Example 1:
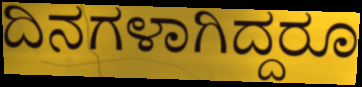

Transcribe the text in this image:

ದಿನಗಳಾಗಿದ್ದರೂ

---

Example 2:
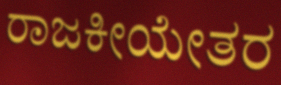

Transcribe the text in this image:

ರಾಜಕೀಯೇತರ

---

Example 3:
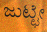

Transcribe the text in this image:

ಜುಟ್ಟೇ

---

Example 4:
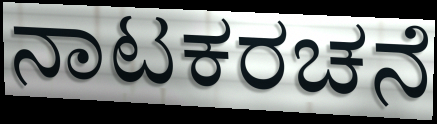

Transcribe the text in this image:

ನಾಟಕರಚನೆ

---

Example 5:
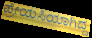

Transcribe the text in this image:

ಪ್ರೇಯಸಿಯಾಗಿದ್ದ